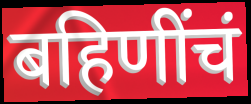
बहिणींचं